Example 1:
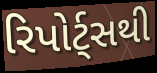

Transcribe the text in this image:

રિપોર્ટ્સથી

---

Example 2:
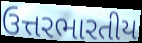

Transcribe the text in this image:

ઉત્તરભારતીય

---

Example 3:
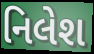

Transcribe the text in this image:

નિલેશ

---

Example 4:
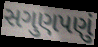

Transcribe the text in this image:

સગુણપણું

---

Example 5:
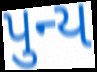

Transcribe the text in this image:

પુન્ય